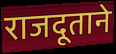
राजदूताने